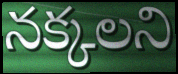
నక్కలని